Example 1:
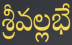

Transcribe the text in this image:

శ్రీవల్లభే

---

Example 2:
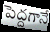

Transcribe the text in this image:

పెద్దగానే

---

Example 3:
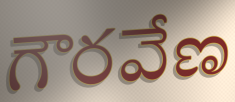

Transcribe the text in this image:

గౌరవేణ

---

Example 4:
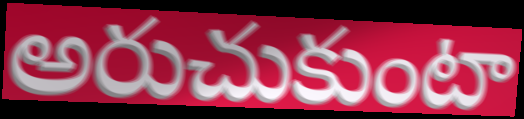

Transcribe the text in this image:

అరుచుకుంటా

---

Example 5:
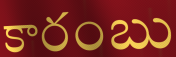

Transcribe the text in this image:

కారంబు